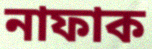
নাফাক